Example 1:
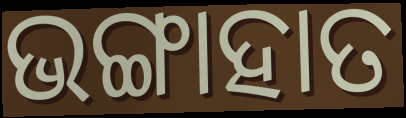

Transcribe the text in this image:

ଭଙ୍ଗାହାତ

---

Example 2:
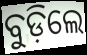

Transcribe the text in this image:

ବୁଡ଼ିଲେ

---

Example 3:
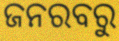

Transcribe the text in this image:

ଜନରବରୁ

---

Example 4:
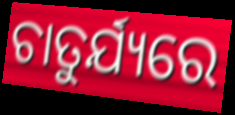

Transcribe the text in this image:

ଚାତୁର୍ଯ୍ୟରେ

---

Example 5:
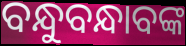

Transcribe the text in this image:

ବନ୍ଧୁବନ୍ଧାବଙ୍କ